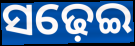
ସଢ଼େଇ